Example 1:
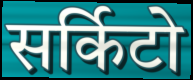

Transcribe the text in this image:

सर्किटो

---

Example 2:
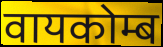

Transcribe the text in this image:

वायकोम्ब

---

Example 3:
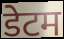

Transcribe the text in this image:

डेटम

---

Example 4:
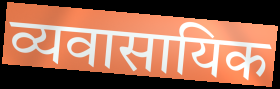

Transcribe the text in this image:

व्यवासायिक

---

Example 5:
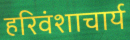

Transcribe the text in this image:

हरिवंशाचार्य